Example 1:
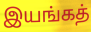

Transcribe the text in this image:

இயங்கத்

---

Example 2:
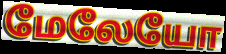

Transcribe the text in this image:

மேலேயோ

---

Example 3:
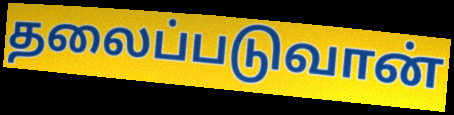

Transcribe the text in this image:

தலைப்படுவான்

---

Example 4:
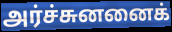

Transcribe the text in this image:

அர்ச்சுனனைக்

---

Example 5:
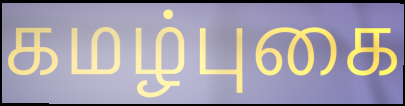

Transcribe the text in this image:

கமழ்புகை